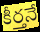
కీర్తనే